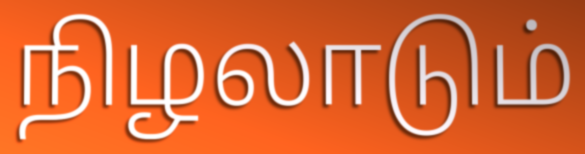
நிழலாடும்